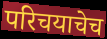
परिचयाचेच